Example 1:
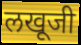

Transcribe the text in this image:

लखूजी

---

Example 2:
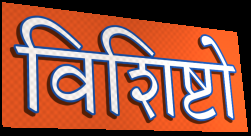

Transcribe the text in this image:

विशिष्टो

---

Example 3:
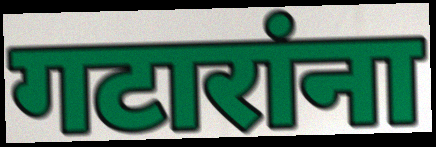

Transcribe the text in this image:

गटारांना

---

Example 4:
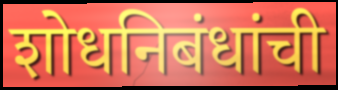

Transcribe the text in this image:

शोधनिबंधांची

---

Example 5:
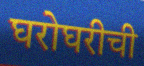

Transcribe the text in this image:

घरोघरीची